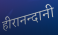
हीरानन्दानी